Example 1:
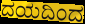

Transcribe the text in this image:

ದಯದಿಂದ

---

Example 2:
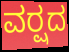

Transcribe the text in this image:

ವರ್‍ಷದ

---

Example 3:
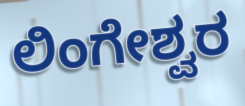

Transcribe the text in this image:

ಲಿಂಗೇಶ್ವರ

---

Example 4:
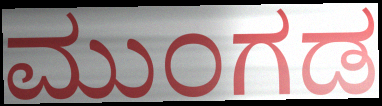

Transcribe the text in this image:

ಮುಂಗಡ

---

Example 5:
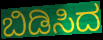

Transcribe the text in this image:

ಬಿಡಿಸಿದ